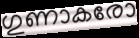
ഗുണാകരോ